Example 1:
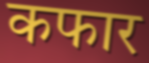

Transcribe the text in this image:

कफार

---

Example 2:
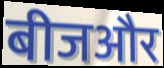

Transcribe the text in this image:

बीजऔर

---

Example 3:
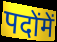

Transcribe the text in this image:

पदोंमें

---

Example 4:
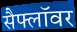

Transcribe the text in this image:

सैफ्लॉवर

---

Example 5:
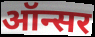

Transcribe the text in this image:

ऑन्सर